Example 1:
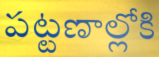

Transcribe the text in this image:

పట్టణాల్లోకి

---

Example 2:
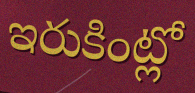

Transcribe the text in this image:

ఇరుకింట్లో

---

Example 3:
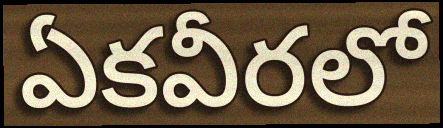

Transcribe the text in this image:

ఏకవీరలో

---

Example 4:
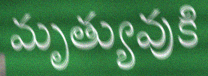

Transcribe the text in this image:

మృత్యువుకి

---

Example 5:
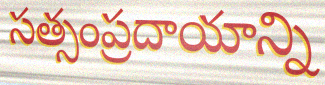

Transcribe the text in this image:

సత్సంప్రదాయాన్ని